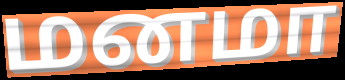
மனமா